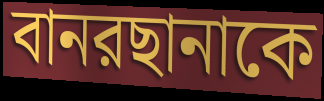
বানরছানাকে